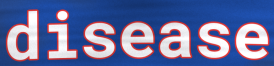
disease